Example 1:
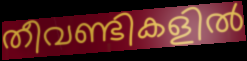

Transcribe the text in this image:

തീവണ്ടികളിൽ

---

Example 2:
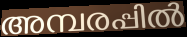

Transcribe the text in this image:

അമ്പരപ്പിൽ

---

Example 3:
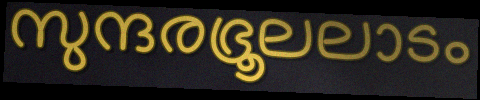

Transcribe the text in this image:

സുന്ദരഭ്രൂലലാടം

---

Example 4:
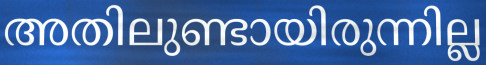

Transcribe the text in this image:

അതിലുണ്ടായിരുന്നില്ല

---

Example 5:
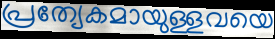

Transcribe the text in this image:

പ്രത്യേകമായുള്ളവയെ